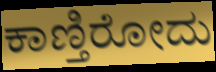
ಕಾಣ್ತಿರೋದು